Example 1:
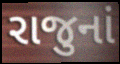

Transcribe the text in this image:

રાજુનાં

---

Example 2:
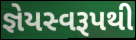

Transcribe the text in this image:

જ્ઞેયસ્વરૂપથી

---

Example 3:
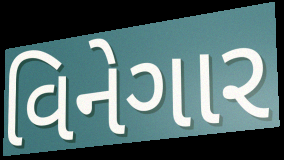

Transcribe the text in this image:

વિનેગાર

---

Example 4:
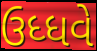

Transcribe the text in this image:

ઉધ્ધવે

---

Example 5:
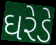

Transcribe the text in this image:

ઘરેડે